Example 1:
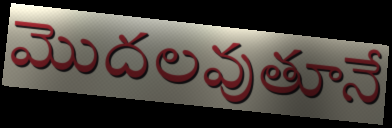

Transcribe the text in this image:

మొదలవుతూనే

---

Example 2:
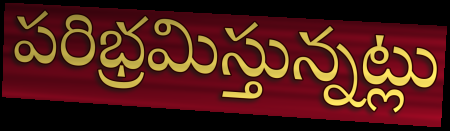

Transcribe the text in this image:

పరిభ్రమిస్తున్నట్లు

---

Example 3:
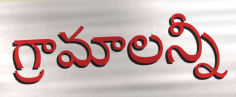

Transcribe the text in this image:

గ్రామాలన్నీ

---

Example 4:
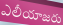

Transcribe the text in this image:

ఎలీయాజరు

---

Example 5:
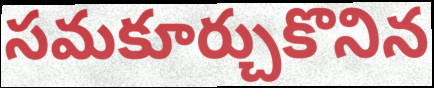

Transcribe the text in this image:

సమకూర్చుకొనిన